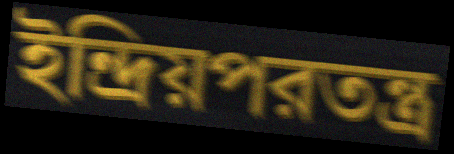
ইন্দ্রিয়পরতন্ত্র